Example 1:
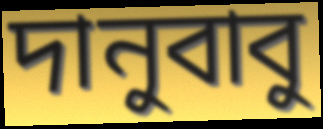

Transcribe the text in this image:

দানুবাবু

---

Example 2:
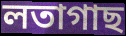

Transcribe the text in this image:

লতাগাছ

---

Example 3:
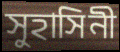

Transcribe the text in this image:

সুহাসিনী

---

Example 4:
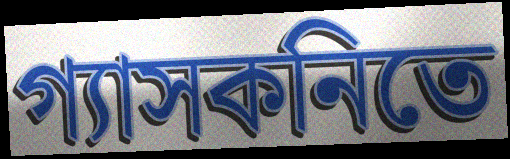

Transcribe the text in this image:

গ্যাসকনিতে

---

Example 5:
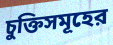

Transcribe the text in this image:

চুক্তিসমূহের